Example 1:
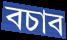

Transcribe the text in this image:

বচাব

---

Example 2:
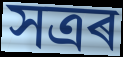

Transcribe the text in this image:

সত্ৰৰ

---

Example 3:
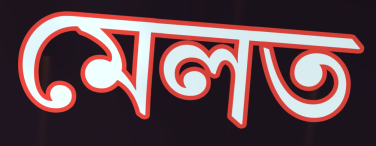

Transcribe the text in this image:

মেলত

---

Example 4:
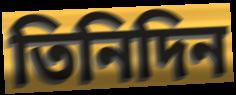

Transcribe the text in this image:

তিনিদিন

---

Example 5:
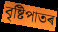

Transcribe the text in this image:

বৃষ্টিপাতৰ